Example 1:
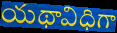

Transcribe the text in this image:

యథావిధిగా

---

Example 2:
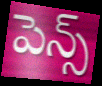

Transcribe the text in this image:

పెన్స్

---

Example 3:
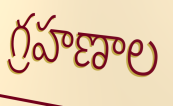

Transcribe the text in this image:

గ్రహణాల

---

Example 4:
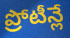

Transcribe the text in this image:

ప్రోటీన్లే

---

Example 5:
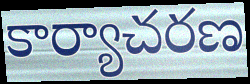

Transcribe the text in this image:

కార్యాచరణ